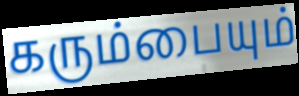
கரும்பையும்